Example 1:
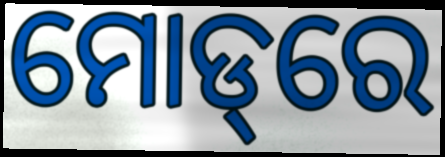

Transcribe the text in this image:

ମୋଡ୍‌ରେ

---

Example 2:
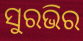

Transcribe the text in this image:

ସୁରଭିର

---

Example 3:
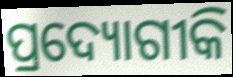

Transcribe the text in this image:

ପ୍ରଦ୍ୟୋଗୀକି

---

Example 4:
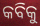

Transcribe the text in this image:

କବିକୁ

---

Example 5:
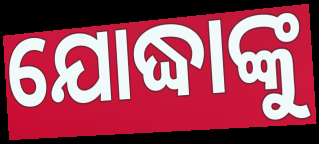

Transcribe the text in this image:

ଯୋଦ୍ଧାଙ୍କୁ